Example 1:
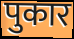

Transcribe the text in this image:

पुकार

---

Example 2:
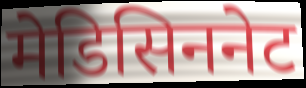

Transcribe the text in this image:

मेडिसिननेट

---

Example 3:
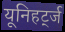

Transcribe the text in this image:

यूनिहर्ट्ज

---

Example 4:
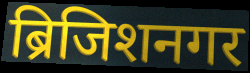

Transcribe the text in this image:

ब्रिजिशनगर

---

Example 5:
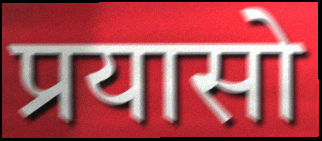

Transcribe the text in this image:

प्रयासो